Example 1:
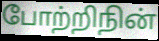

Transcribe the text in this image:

போற்றிநின்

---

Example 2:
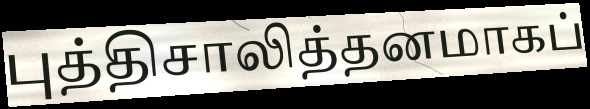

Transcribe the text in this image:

புத்திசாலித்தனமாகப்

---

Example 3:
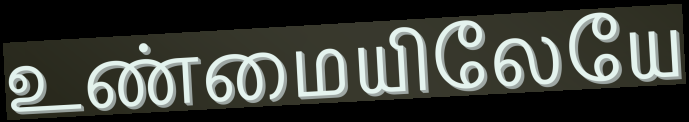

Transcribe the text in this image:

உண்மையிலேயே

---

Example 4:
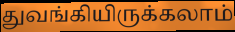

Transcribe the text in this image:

துவங்கியிருக்கலாம்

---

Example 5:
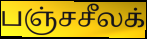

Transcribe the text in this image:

பஞ்சசீலக்